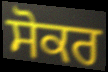
ਸੋਕਰ